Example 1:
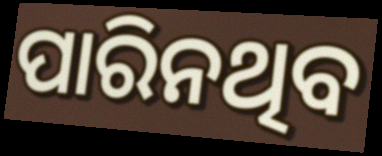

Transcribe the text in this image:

ପାରିନଥିବ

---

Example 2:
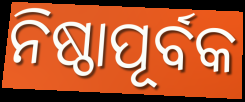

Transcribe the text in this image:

ନିଷ୍ଠାପୂର୍ବକ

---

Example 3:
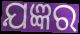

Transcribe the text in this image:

ଯଜ୍ଞର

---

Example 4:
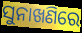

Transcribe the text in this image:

ସୁନାଖଣିରେ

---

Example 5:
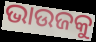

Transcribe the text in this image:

ଭାଉଜକୁ